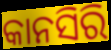
କାନସିରି